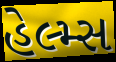
હેલ્મ્સ